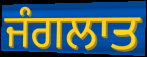
ਜੰਗਲਾਤ